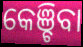
କେଞ୍ଚିବା